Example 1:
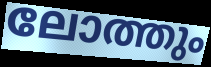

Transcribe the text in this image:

ലോത്തും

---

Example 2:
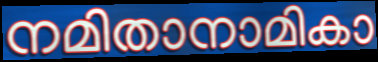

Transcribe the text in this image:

നമിതാനാമികാ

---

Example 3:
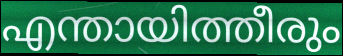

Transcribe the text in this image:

എന്തായിത്തീരും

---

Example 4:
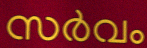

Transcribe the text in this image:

സർവം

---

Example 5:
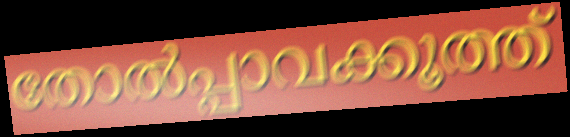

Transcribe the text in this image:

തോൽപ്പാവക്കൂത്ത്